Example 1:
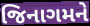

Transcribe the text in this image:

જિનાગમને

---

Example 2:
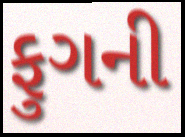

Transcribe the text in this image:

ફુગની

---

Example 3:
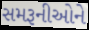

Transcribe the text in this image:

સમરૂનીઓને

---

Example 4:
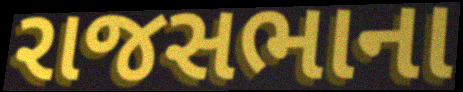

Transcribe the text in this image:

રાજસભાના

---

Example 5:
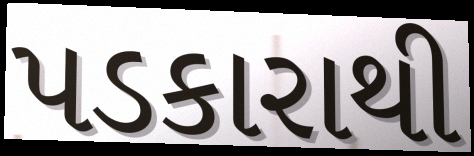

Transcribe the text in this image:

પડકારાથી